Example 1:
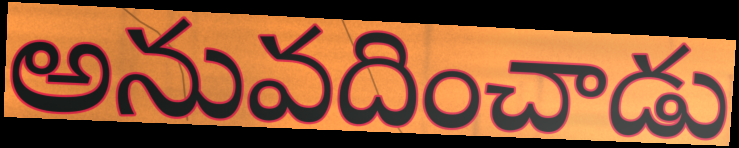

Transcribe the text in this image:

అనువదించాడు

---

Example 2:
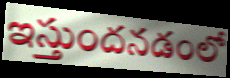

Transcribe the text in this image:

ఇస్తుందనడంలో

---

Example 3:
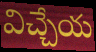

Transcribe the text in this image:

విచ్చేయ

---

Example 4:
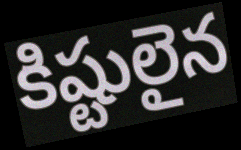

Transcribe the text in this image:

కిష్టులైన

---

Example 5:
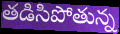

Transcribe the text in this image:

తడిసిపోతున్న